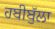
ਹਬੀਬੁੱਲਾ